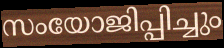
സംയോജിപ്പിച്ചും